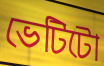
ভেটিটো